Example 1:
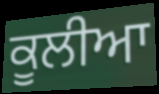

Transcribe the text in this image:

ਕੂਲੀਆ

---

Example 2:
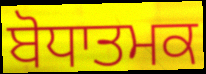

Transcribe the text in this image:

ਬੋਧਾਤਮਕ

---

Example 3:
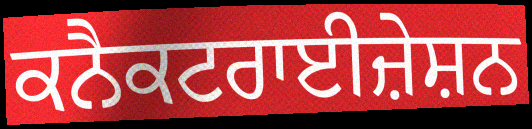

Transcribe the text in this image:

ਕਨੈਕਟਰਾਈਜ਼ੇਸ਼ਨ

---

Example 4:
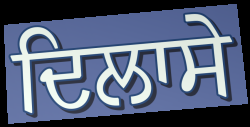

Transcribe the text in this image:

ਦਿਲਾਸੇ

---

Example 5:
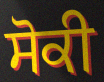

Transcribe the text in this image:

ਸੋਕੀ